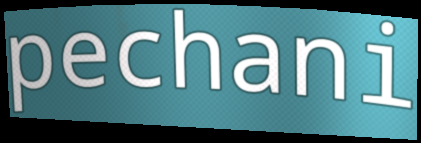
pechani